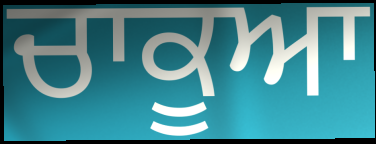
ਚਾਕੂਆ